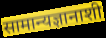
सामान्यज्ञानाशी